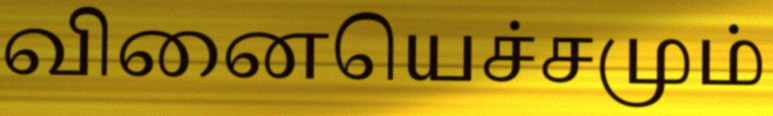
வினையெச்சமும்